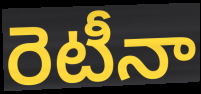
రెటీనా